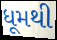
ધૂમથી